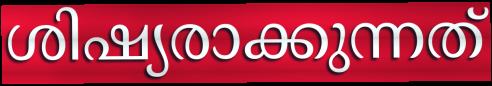
ശിഷ്യരാക്കുന്നത്